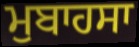
ਮੁਬਾਹਸਾ